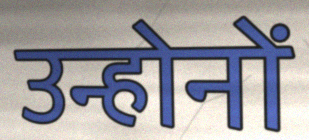
उन्होनों